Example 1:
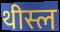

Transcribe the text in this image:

थीस्ल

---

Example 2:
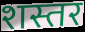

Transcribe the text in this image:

शस्तर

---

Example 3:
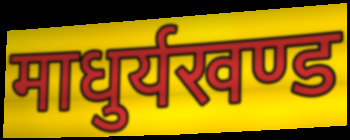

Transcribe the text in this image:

माधुर्यखण्ड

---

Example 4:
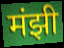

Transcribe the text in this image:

मंझी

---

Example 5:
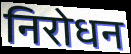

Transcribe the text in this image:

निरोधन